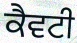
ਕੈਵਟੀ